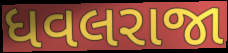
ધવલરાજા